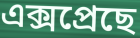
এক্সপ্ৰেছে